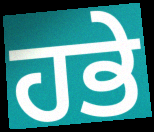
ਹਭੇ